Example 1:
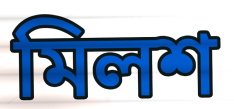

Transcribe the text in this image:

মিলশ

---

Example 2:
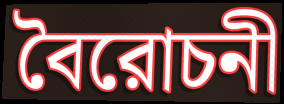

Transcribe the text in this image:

বৈরোচনী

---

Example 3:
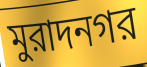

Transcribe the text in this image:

মুরাদনগর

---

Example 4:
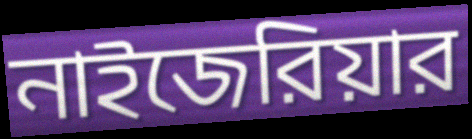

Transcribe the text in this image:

নাইজেরিয়ার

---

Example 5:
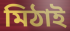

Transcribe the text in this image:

মিঠাই